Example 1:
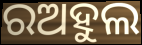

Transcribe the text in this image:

ରଅହୁଲ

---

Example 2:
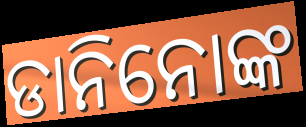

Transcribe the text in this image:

ଡାନିନୋଙ୍କ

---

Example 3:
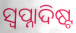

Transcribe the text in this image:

ସ୍ୱପ୍ନାଦିଷ୍ଟ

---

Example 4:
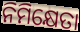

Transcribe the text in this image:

ନିମିକ୍ଷେତା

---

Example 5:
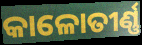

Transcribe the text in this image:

କାଳୋତୀର୍ଣ୍ଣ